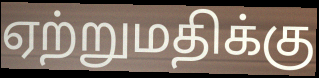
ஏற்றுமதிக்கு